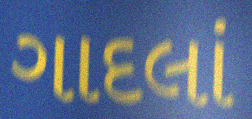
ગાદલાં